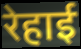
रेहाई